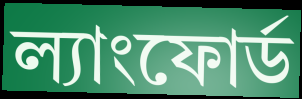
ল্যাংফোর্ড